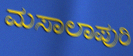
ಮಸಾಲಾಪುರಿ